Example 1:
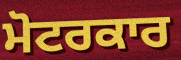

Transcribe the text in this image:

ਮੋਟਰਕਾਰ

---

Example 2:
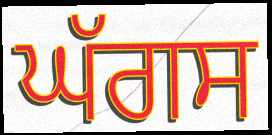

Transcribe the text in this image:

ਘੱਗਸ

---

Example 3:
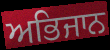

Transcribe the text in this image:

ਅਭਿਜਾਨ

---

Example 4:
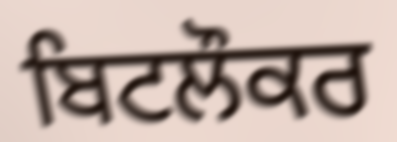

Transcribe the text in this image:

ਬਿਟਲੌਕਰ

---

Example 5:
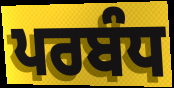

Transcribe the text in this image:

ਪਰਬੰਧ